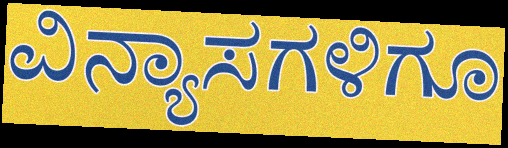
ವಿನ್ಯಾಸಗಳಿಗೂ